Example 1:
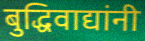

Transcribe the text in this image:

बुद्धिवाद्यांनी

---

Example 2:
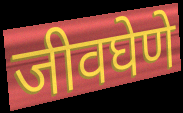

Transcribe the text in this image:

जीवघेणे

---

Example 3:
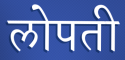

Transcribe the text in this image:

लोपती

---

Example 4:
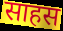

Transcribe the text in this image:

साहस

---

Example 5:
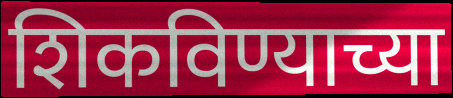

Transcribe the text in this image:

शिकविण्याच्या